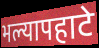
भल्यापहाटे